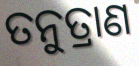
ତନୁତ୍ରାଣ